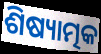
ଶିଷ୍ୟାତ୍ମକ